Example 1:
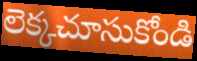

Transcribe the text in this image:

లెక్కచూసుకోండి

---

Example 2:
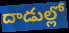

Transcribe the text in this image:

దాడుల్లో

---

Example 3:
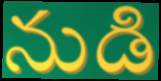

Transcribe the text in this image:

నుడి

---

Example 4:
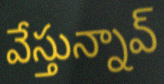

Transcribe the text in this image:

వేస్తున్నావ్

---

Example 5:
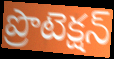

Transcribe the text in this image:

ప్రొటెక్షన్